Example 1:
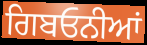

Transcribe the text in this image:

ਗਿਬਓਨੀਆਂ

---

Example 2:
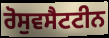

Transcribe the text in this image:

ਰੋਸੁਵਸੈਟਟੀਨ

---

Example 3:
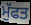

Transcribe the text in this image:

ਮੁੱਫਤ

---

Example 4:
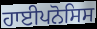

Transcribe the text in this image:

ਹਾਈਪਨੋਸਿਸ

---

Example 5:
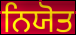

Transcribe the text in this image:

ਨਿਯੋਤ